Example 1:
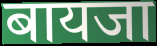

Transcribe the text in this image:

बायजा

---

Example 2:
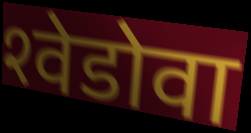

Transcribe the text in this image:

श्वेडोवा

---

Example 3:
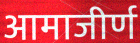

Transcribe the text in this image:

आमाजीर्ण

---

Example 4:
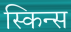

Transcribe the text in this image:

स्किन्स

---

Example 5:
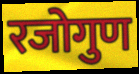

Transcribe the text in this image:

रजोगुण